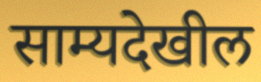
साम्यदेखील